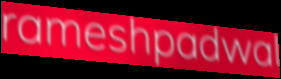
rameshpadwal